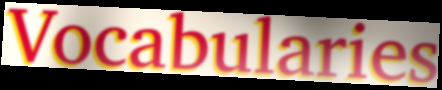
Vocabularies